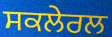
ਸਕਲੇਰਲ